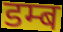
डम्ब